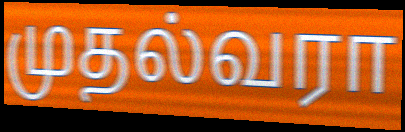
முதல்வரா